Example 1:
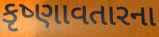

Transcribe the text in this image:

કૃષ્ણાવતારના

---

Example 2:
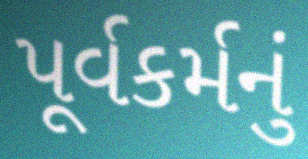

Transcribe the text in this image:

પૂર્વકર્મનું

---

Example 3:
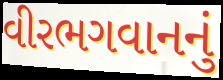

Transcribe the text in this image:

વીરભગવાનનું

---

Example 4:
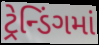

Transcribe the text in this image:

ટ્રેન્ડિંગમાં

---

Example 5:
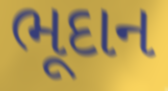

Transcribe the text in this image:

ભૂદાન